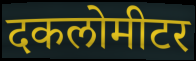
दकलोमीटर